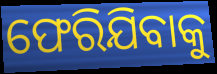
ଫେରିଯିବାକୁ